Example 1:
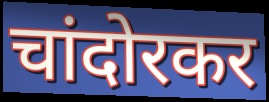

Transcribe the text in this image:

चांदोरकर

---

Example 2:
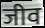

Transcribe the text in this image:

जीव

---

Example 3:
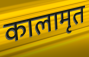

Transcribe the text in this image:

कालामृत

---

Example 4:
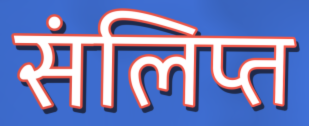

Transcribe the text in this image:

संलिप्त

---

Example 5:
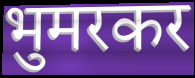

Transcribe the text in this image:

भुमरकर